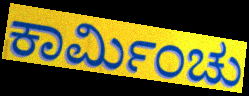
ಕಾರ್ಮಿಂಚು